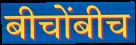
बीचोंबीच